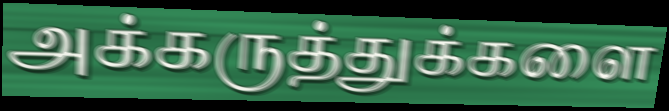
அக்கருத்துக்களை